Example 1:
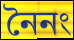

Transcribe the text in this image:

নৈনং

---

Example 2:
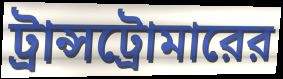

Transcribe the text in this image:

ট্রান্সট্রোমারের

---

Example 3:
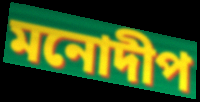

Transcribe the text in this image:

মনোদীপ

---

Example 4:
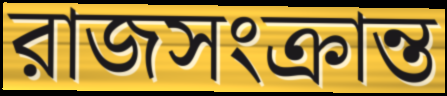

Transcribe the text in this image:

রাজসংক্রান্ত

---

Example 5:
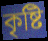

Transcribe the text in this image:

কৃষ্টি